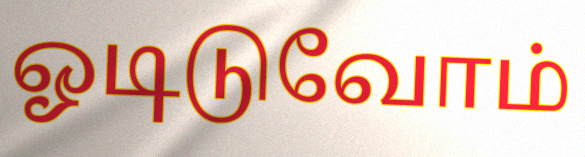
ஓடிடுவோம்